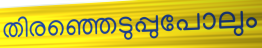
തിരഞ്ഞെടുപ്പുപോലും